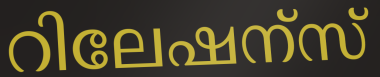
റിലേഷന്സ്